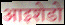
आइशेडो